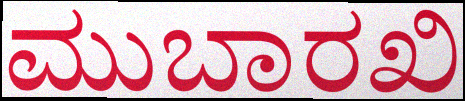
ಮುಬಾರಖಿ